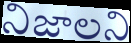
నిజాలని